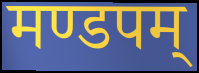
मण्डपम्